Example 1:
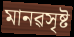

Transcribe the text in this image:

মানৱসৃষ্ট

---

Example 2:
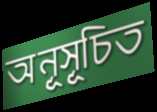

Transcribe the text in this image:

অনূসূচিত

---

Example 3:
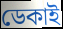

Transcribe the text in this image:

ডেকাই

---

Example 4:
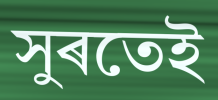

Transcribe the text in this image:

সুৰতেই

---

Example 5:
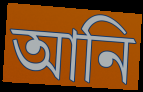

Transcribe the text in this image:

আনি